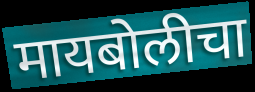
मायबोलीचा